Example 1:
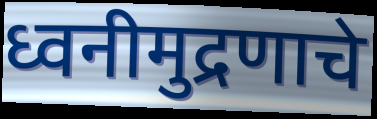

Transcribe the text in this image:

ध्वनीमुद्रणाचे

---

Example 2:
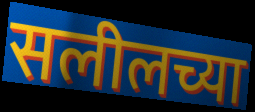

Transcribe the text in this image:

सलीलच्या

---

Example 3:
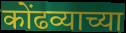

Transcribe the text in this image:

कोंढव्याच्या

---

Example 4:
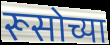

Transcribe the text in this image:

रूसोच्या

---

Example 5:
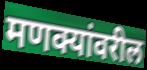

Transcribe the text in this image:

मणक्यांवरील